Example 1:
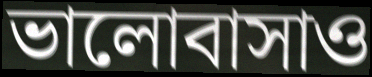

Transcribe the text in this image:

ভালোবাসাও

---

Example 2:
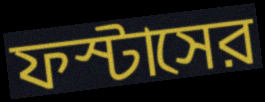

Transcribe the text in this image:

ফস্টাসের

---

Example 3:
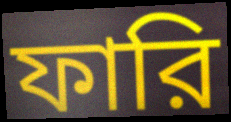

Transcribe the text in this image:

ফারি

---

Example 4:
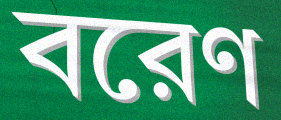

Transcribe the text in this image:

বরেণ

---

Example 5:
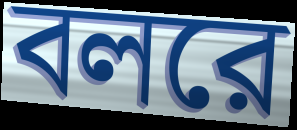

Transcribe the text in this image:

বলরে